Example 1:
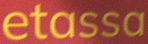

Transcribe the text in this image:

etassa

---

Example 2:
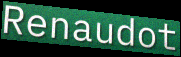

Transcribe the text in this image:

Renaudot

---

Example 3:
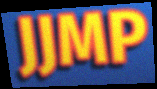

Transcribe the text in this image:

JJMP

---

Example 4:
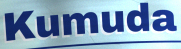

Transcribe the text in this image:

Kumuda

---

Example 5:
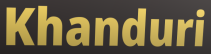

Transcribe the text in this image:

Khanduri